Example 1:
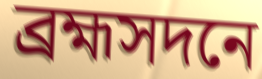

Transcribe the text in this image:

ব্রহ্মসদনে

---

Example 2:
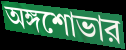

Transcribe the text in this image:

অঙ্গশোভার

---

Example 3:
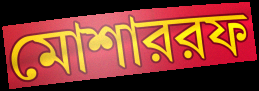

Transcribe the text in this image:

মোশাররফ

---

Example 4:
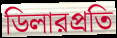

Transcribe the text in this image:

ডিলারপ্রতি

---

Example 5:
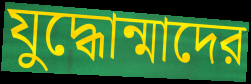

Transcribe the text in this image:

যুদ্ধোন্মাদের